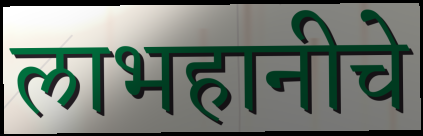
लाभहानीचे